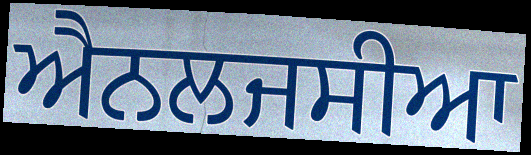
ਐਨਲਜਸੀਆ